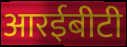
आरईबीटी